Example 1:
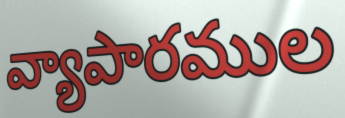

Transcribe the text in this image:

వ్యాపారముల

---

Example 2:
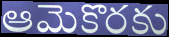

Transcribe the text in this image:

ఆమెకొరకు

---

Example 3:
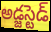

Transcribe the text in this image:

అడ్జస్టెడ్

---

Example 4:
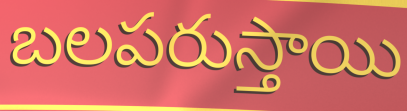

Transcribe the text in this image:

బలపరుస్తాయి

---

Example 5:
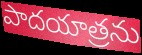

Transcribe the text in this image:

పాదయాత్రను